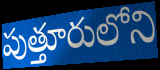
పుత్తూరులోని